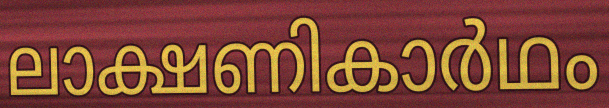
ലാക്ഷണികാർഥം